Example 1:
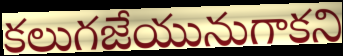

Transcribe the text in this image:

కలుగజేయునుగాకని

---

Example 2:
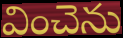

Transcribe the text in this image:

వించెను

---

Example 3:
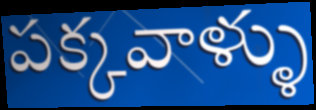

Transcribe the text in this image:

పక్కవాళ్ళు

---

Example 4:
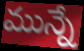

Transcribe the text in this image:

మున్నే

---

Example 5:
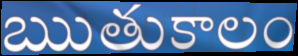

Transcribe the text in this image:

ఋతుకాలం